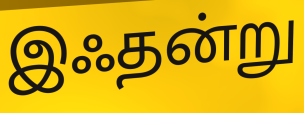
இஃதன்று